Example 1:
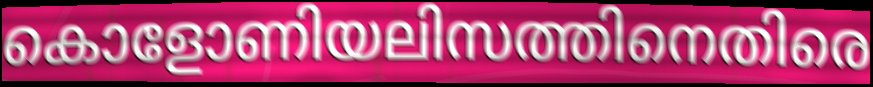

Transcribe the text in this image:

കൊളോണിയലിസത്തിനെതിരെ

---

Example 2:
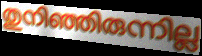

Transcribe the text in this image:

തുനിഞ്ഞിരുന്നില്ല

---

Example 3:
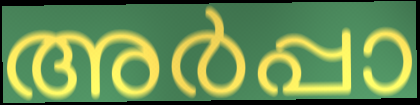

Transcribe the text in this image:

അർപ്പാ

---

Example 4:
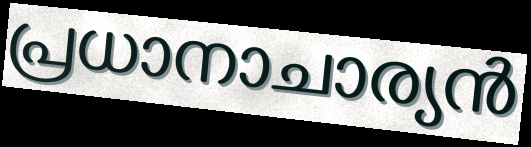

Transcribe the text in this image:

പ്രധാനാചാര്യൻ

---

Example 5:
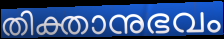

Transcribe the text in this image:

തിക്താനുഭവം